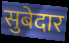
सुबेदार